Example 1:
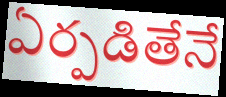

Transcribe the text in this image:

ఏర్పడితేనే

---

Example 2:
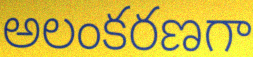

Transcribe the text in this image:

అలంకరణగా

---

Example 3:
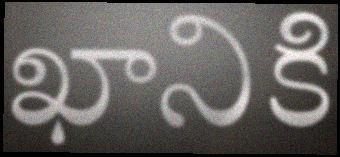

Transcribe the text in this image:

ఖానికి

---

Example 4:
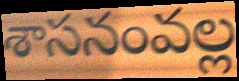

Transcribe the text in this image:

శాసనంవల్ల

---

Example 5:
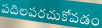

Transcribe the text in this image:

పదిలపరచుకోవడం